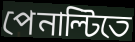
পেনাল্টিতে